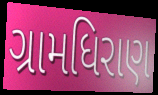
ગ્રામધિરાણ